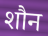
शौन